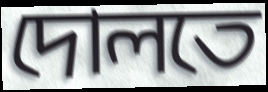
দোলতে